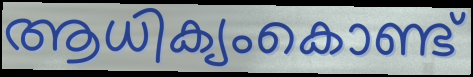
ആധിക്യംകൊണ്ട്